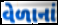
વેળાનાં